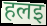
हलइ